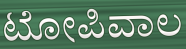
ಟೋಪಿವಾಲ